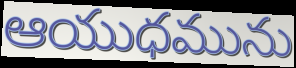
ఆయుధమును